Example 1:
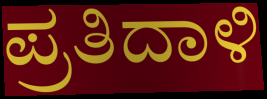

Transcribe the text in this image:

ಪ್ರತಿದಾಳಿ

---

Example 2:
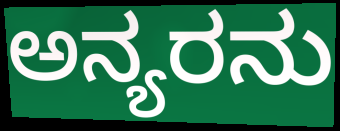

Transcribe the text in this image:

ಅನ್ಯರನು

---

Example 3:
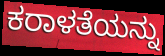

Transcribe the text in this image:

ಕರಾಳತೆಯನ್ನು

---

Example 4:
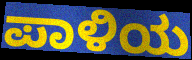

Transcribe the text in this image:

ಪಾಳಿಯ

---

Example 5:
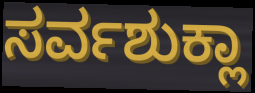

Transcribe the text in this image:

ಸರ್ವಶುಕ್ಲಾ